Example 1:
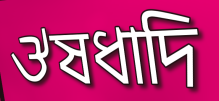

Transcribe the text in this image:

ঔষধাদি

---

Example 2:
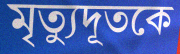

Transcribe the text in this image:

মৃত্যুদূতকে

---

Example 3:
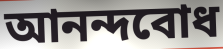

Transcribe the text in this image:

আনন্দবোধ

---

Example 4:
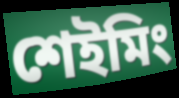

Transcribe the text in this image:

শেইমিং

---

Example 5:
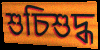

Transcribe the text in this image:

শুচিশুদ্ধ